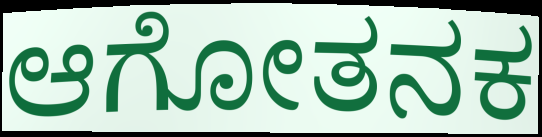
ಆಗೋತನಕ